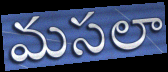
మసలా